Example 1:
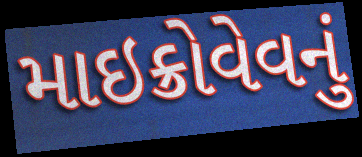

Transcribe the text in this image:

માઇક્રોવેવનું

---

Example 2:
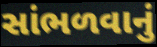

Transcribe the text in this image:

સાંભળવાનું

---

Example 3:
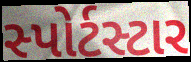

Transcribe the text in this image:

સ્પોર્ટસ્ટાર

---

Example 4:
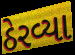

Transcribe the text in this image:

ઠેરવ્યા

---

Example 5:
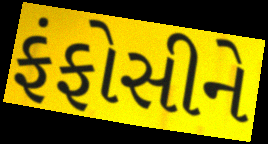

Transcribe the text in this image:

ફંફોસીને